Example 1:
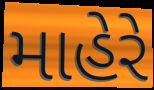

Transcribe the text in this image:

માહેરે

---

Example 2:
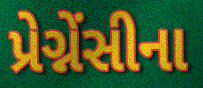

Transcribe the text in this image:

પ્રેગ્નેંસીના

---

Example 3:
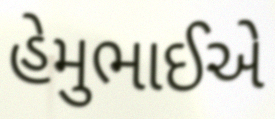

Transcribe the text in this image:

હેમુભાઈએ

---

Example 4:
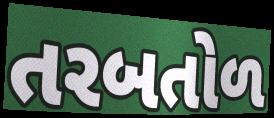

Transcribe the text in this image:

તરબતોળ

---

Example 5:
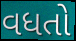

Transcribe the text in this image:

વધતો